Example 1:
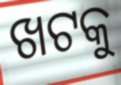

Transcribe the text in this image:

ଖଟକୁ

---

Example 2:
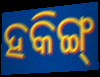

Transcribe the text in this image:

ହକିଙ୍ଗ୍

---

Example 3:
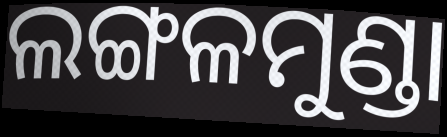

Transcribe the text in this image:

ଲଙ୍ଗଳମୁଣ୍ଡା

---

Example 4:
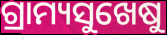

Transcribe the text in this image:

ଗ୍ରାମ୍ୟସୁଖେଷୁ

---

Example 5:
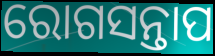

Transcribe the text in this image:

ରୋଗସନ୍ତାପ